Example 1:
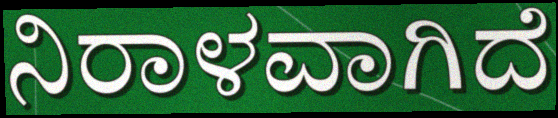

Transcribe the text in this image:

ನಿರಾಳವಾಗಿದೆ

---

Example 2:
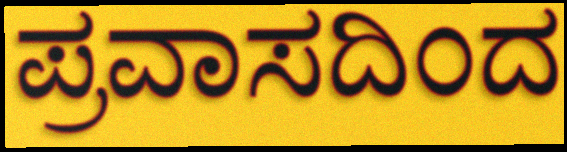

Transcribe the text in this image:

ಪ್ರವಾಸದಿಂದ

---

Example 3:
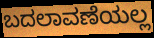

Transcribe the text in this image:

ಬದಲಾವಣೆಯಲ್ಲ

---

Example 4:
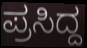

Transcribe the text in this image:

ಪ್ರಸಿದ್ದ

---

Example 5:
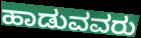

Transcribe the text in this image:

ಹಾಡುವವರು